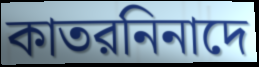
কাতরনিনাদে